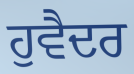
ਹੁਵੈਦਰ